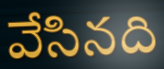
వేసినది